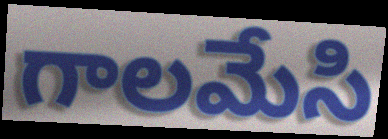
గాలమేసి